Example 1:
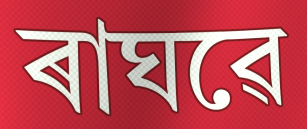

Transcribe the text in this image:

ৰাঘৱে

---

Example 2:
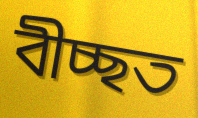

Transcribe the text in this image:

বীচ্ছত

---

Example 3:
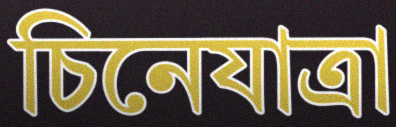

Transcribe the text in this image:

চিনেযাত্ৰা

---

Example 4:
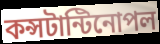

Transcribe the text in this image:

কন্সটান্টিনোপল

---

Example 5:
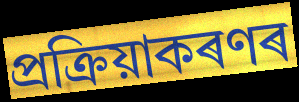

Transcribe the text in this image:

প্ৰক্ৰিয়াকৰণৰ